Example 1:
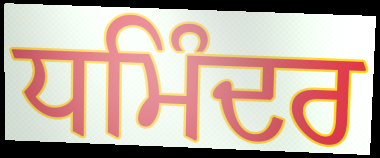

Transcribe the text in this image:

ਧਮਿੰਦਰ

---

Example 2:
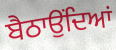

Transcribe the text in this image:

ਬੈਠਾਉਂਦਿਆਂ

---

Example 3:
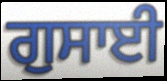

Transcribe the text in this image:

ਗੁਸਾਈ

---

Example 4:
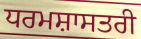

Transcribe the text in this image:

ਧਰਮਸ਼ਾਸਤਰੀ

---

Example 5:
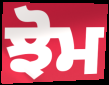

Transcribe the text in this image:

ਝੋਮ